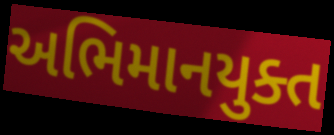
અભિમાનયુક્ત